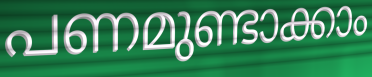
പണമുണ്ടാക്കാം